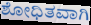
ಶೋಧಿತವಾಗಿ